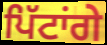
ਪਿੱਟਾਂਗੇ